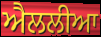
ਐਲਲੀਆ